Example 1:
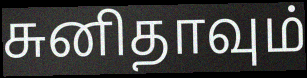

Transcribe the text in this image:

சுனிதாவும்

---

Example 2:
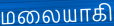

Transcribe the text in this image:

மலையாகி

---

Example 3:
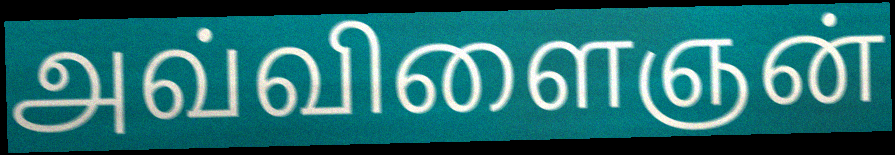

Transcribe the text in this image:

அவ்விளைஞன்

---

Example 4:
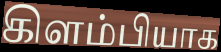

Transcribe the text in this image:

கிளம்பியாக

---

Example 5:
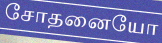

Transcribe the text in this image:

சோதனையோ